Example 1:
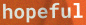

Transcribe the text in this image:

hopeful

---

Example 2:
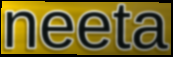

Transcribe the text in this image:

neeta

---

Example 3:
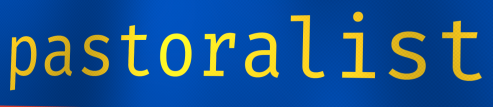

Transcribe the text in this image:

pastoralist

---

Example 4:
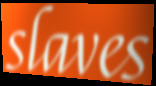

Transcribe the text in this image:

slaves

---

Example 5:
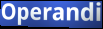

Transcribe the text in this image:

Operandi